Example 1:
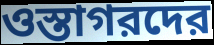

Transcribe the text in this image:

ওস্তাগরদের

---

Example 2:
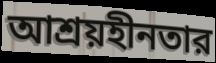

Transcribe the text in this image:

আশ্রয়হীনতার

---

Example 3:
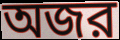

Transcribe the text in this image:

অজর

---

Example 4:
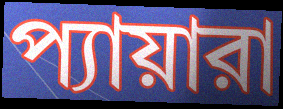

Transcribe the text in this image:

প্যায়ারা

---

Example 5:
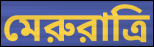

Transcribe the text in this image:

মেরুরাত্রি